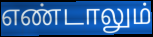
எண்டாலும்